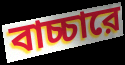
বাচ্চারে